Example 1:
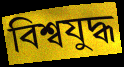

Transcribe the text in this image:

বিশ্বযুদ্ধ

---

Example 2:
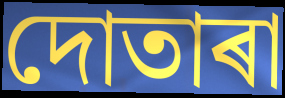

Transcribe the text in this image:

দোতাৰা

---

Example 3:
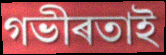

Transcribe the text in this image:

গভীৰতাই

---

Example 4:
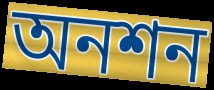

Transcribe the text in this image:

অনশন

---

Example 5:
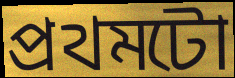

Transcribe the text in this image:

প্ৰথমটো